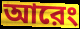
আরেং